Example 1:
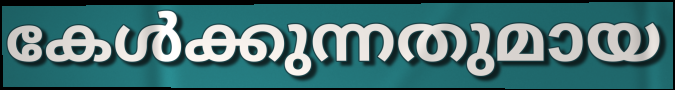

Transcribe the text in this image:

കേൾക്കുന്നതുമായ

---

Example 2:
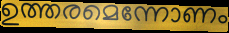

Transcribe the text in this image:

ഉത്തരമെന്നോണം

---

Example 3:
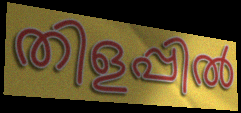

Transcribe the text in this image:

തിളപ്പിൽ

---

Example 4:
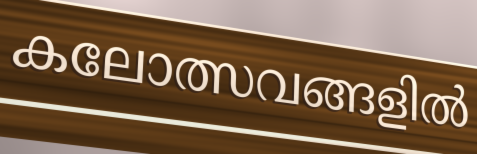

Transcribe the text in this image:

കലോത്സവങ്ങളിൽ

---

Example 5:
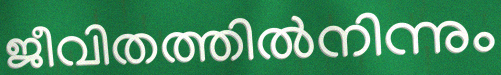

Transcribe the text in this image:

ജീവിതത്തിൽനിന്നും